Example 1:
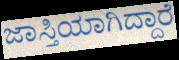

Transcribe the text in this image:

ಜಾಸ್ತಿಯಾಗಿದ್ದಾರೆ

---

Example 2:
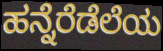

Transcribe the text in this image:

ಹನ್ನೆರೆಡೆಲೆಯ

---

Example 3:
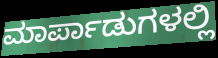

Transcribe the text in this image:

ಮಾರ್ಪಾಡುಗಳಲ್ಲಿ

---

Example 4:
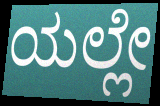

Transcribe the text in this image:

ಯಲ್ಲೇ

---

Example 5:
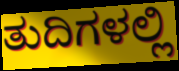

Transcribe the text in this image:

ತುದಿಗಳಲ್ಲಿ